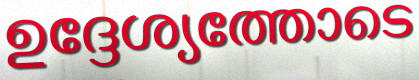
ഉദ്ദേശ്യത്തോടെ